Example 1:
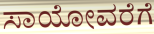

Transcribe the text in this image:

ಸಾಯೋವರೆಗೆ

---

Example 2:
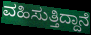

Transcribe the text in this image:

ವಹಿಸುತ್ತಿದ್ದಾನೆ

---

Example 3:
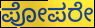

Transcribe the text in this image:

ಪೋಪರೇ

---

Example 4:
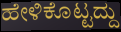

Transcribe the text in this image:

ಹೇಳಿಕೊಟ್ಟದ್ದು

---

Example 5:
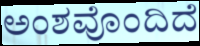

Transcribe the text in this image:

ಅಂಶವೊಂದಿದೆ